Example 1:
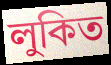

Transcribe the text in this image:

লুকিত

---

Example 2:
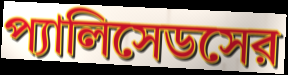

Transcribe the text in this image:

প্যালিসেডসের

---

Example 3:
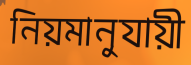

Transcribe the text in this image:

নিয়মানুযায়ী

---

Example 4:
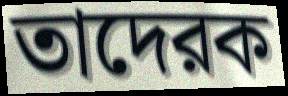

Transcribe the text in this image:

তাদেরক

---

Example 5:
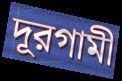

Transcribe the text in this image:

দূরগামী